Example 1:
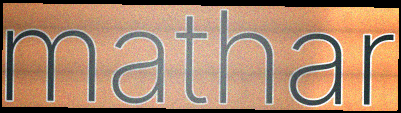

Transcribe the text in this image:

mathar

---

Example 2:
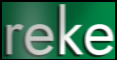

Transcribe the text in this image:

reke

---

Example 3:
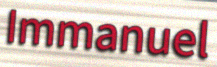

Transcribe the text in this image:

Immanuel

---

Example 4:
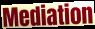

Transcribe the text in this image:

Mediation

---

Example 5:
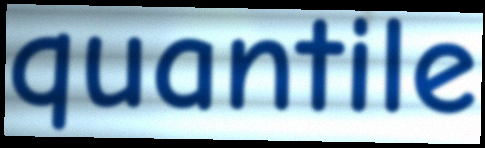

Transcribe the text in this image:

quantile